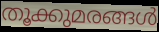
തൂക്കുമരങ്ങൾ